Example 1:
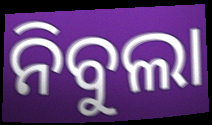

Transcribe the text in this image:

ନିବୁଲା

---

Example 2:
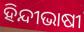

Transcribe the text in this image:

ହିନ୍ଦୀଭାଷୀ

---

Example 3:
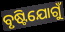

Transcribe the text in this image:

ବୃଷ୍ଟିଯୋଗୁଁ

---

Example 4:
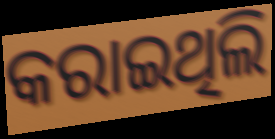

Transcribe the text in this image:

କରାଇଥିଲି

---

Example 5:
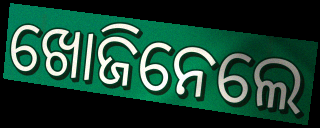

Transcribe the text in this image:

ଖୋଜିନେଲେ